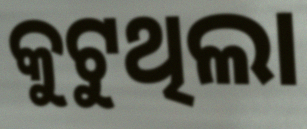
କୁଟୁଥିଲା